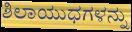
ಶಿಲಾಯುಧಗಳನ್ನು